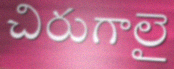
చిరుగాలై